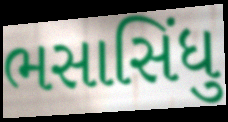
ભસાસિંધુ